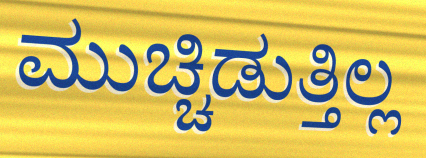
ಮುಚ್ಚಿಡುತ್ತಿಲ್ಲ